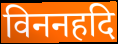
विननहदि